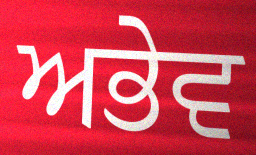
ਅਭੇਵ